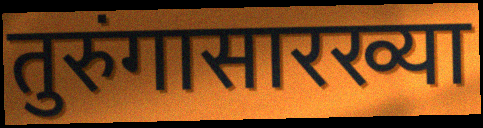
तुरुंगासारख्या